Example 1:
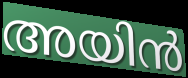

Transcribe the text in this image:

അയിൻ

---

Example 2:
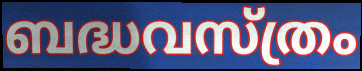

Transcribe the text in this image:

ബദ്ധവസ്ത്രം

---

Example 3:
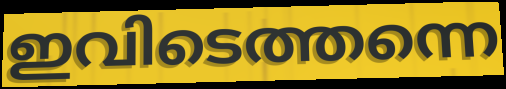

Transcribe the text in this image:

ഇവിടെത്തന്നെ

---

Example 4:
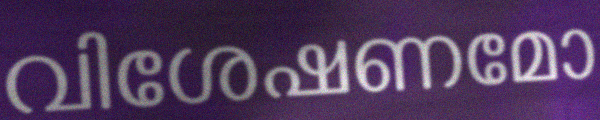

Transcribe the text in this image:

വിശേഷണമോ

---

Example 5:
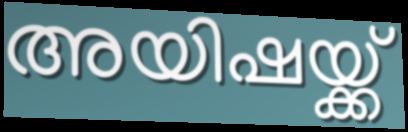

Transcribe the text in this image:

അയിഷയ്ക്ക്